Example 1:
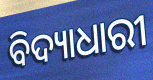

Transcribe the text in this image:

ବିଦ୍ୟାଧାରୀ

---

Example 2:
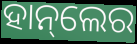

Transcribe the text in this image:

ହାନ୍‌ଲେର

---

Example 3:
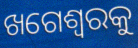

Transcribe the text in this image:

ଖଗେଶ୍ୱରକୁ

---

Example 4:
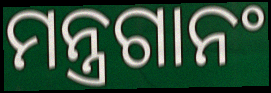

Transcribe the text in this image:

ମନ୍ତ୍ରଗାନଂ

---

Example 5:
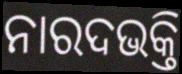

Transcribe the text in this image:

ନାରଦଭକ୍ତି